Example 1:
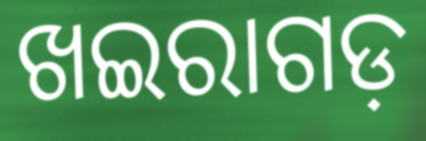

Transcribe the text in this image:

ଖଇରାଗଡ଼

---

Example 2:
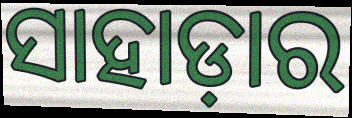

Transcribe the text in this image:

ସାହାଡ଼ାର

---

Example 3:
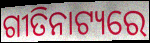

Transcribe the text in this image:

ଗୀତିନାଟ୍ୟରେ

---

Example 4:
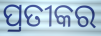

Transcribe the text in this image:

ପ୍ରତୀକର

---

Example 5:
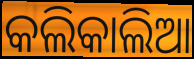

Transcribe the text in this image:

କଲିକାଲିଆ